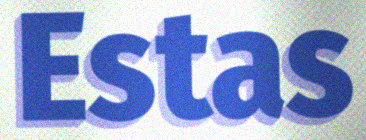
Estas